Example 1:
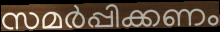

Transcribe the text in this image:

സമർപ്പിക്കണം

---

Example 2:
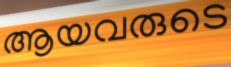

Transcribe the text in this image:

ആയവരുടെ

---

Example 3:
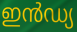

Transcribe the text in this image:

ഇൻഡ്യ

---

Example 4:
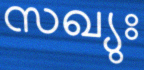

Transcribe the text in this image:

സഖ്യുഃ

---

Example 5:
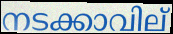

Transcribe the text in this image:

നടക്കാവില്